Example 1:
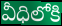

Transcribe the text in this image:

వీధిలోకి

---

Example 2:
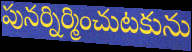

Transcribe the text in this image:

పునర్నిర్మించుటకును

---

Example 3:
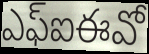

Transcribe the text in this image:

ఎఫ్ఐఈవో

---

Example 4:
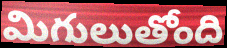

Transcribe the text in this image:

మిగులుతోంది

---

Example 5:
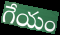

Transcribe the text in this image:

గేయం